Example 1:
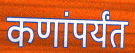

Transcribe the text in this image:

कणांपर्यंत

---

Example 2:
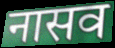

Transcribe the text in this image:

नासव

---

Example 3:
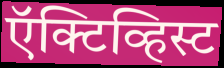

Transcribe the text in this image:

ऍक्टिव्हिस्ट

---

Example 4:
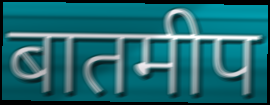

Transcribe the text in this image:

बातमीप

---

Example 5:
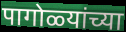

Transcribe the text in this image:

पागोळ्यांच्या